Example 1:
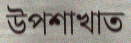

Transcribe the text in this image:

উপশাখাত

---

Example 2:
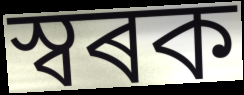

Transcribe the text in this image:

স্বৰক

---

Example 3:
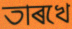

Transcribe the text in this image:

তাৰখে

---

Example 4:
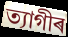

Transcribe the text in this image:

ত্যাগীৰ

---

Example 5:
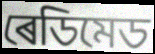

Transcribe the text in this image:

ৰেডিমেড